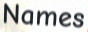
Names